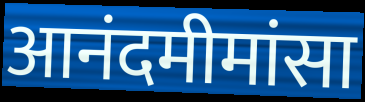
आनंदमीमांसा